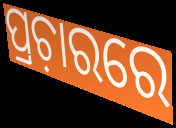
ପ୍ରଚ଼ାରରେ